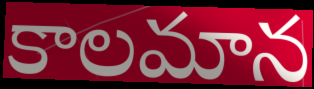
కాలమాన